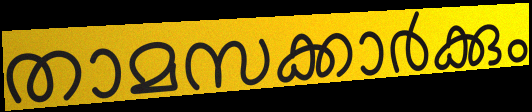
താമസക്കാർക്കും